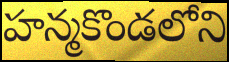
హన్మకొండలోని